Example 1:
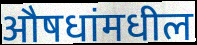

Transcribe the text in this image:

औषधांमधील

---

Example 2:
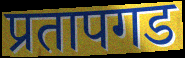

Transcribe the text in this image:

प्रतापगड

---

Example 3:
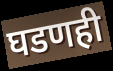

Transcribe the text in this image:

घडणही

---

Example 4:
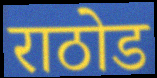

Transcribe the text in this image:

राठोड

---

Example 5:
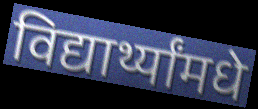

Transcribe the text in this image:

विद्यार्थ्यांमधे